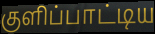
குளிப்பாட்டிய